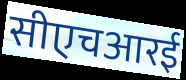
सीएचआरई